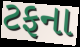
ટફના